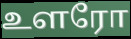
உளரோ